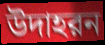
উদাহরন